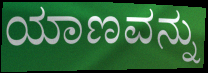
ಯಾಣವನ್ನು